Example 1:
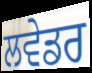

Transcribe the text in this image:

ਲਵੇਡਰ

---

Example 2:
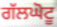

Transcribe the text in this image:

ਗੱਲਘੋਟੂ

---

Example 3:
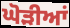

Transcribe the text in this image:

ਘੋੜੀਆਂ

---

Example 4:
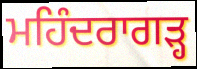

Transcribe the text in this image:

ਮਹਿੰਦਰਾਗੜ੍ਹ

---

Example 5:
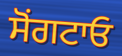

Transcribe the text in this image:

ਸੋਂਗਟਾਓ